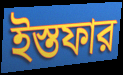
ইস্তফার